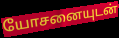
யோசனையுடன்